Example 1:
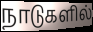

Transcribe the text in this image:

நாடுகளில்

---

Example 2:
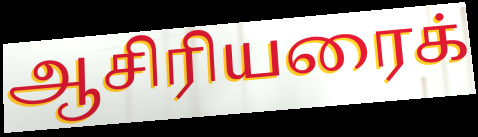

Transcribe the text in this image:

ஆசிரியரைக்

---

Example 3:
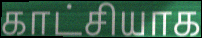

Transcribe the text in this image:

காட்சியாக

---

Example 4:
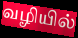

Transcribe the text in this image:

வழியில்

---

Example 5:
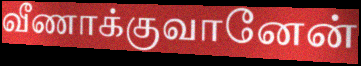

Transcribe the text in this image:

வீணாக்குவானேன்